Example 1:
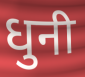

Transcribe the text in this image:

धुनी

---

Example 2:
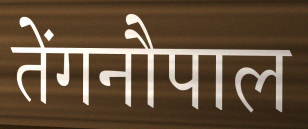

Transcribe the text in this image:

तेंगनौपाल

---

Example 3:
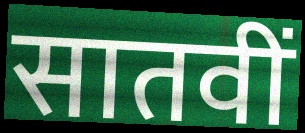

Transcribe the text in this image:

सातवीं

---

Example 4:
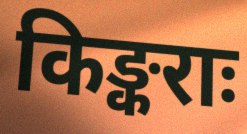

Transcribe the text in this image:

किङ्कराः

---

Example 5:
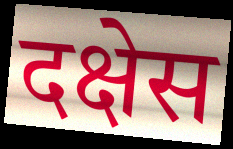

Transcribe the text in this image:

दक्षेस